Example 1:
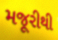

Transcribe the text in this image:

મજૂરીથી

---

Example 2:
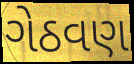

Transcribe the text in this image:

ગેઠવણ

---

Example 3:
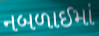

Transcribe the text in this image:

નબળાઈમાં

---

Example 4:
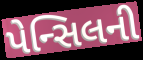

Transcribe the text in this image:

પેન્સિલની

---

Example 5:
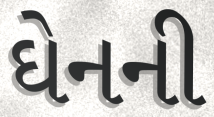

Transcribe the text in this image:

ઘેનની